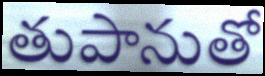
తుపానుతో